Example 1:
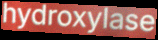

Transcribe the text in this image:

hydroxylase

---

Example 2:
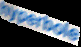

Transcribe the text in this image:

hyperbole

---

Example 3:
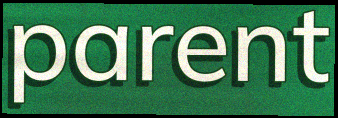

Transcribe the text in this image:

parent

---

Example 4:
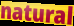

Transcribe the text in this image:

natural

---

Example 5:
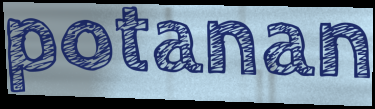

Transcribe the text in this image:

potanan